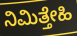
ನಿಮಿತ್ತೇಹಿ